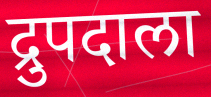
द्रुपदाला